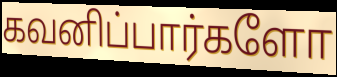
கவனிப்பார்களோ